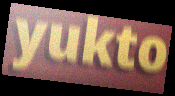
yukto